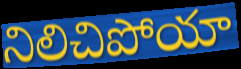
నిలిచిపోయా